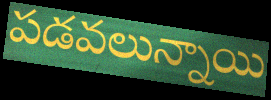
పడవలున్నాయి